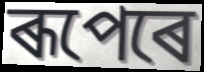
ৰূপেৰে